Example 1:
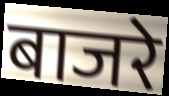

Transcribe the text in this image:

बाजरे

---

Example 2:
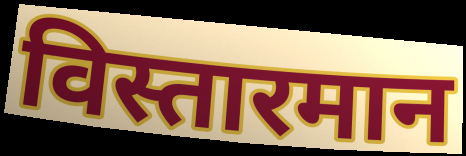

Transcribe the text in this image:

विस्तारमान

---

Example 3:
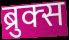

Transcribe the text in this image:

ब्रुक्‍स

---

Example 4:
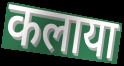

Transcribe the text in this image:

कलाया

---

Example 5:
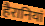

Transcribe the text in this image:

हैरानियां